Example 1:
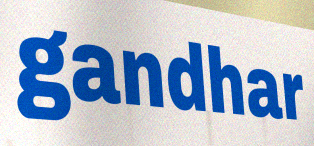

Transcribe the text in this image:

gandhar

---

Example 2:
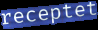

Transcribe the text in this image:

receptet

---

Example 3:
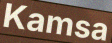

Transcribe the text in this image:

Kamsa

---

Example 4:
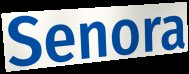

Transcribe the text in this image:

Senora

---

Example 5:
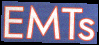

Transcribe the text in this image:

EMTs